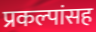
प्रकल्पांसह